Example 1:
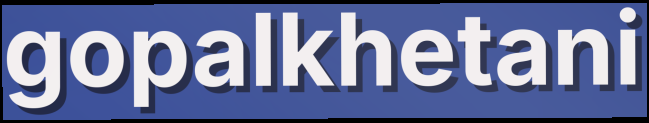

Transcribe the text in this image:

gopalkhetani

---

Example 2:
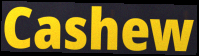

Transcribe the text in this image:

Cashew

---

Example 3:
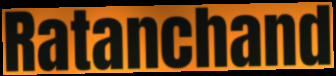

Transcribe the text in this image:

Ratanchand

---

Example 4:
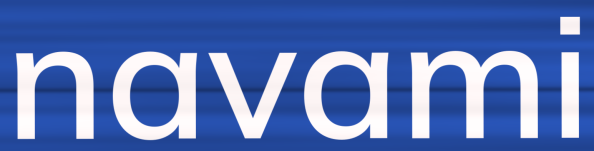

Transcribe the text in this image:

navami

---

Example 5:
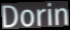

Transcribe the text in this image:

Dorin